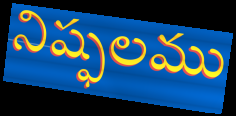
నిష్ఫలము